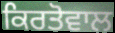
ਕਿਰਤੋਵਾਲ